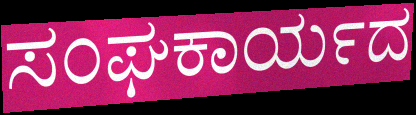
ಸಂಘಕಾರ್ಯದ